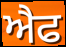
ਐਫ